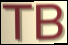
TB